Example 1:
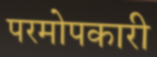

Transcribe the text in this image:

परमोपकारी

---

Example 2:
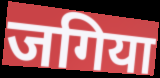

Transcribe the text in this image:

जगिया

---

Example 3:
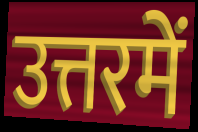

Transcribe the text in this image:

उत्तरमें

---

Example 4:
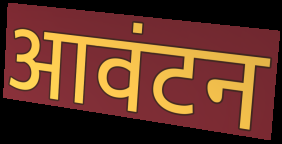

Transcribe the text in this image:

आवंटन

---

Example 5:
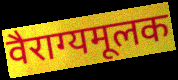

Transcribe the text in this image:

वैराग्यमूलक